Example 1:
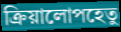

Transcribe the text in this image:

ক্রিয়ালোপহেতু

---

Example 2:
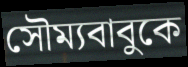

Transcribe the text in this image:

সৌম্যবাবুকে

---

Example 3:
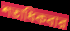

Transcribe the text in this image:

শতাধিকবার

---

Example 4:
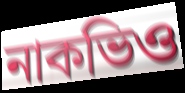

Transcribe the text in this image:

নাকভিও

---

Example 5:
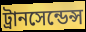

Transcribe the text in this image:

ট্রানসেন্ডেন্স